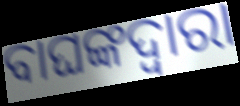
ବାଘଙ୍କଦ୍ୱାରା